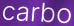
carbo